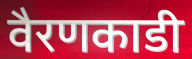
वैरणकाडी